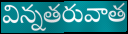
విన్నతరువాత